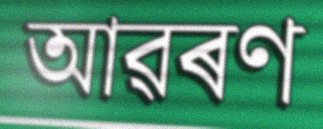
আৱৰণ